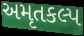
અમૃતકલ્પ